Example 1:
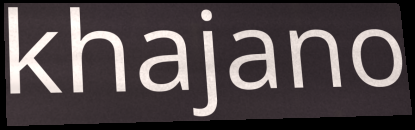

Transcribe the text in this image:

khajano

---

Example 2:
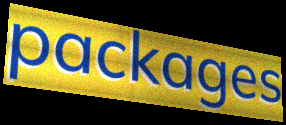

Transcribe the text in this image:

packages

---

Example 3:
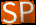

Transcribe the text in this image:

SP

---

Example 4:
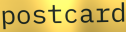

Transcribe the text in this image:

postcard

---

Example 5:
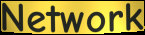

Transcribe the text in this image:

Network